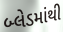
બ્લેડમાંથી